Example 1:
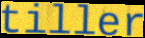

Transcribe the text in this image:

tiller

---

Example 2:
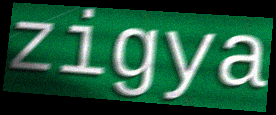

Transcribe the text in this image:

zigya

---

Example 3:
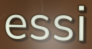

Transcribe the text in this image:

essi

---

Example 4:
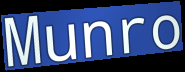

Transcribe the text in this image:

Munro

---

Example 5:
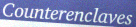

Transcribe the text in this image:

Counterenclaves